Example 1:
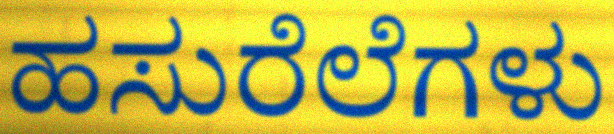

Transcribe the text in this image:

ಹಸುರೆಲೆಗಳು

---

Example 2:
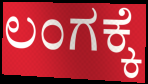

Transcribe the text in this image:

ಲಂಗಕ್ಕೆ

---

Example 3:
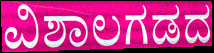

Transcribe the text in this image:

ವಿಶಾಲಗಡದ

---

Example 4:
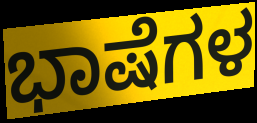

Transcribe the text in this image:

ಭಾಷೆಗಳ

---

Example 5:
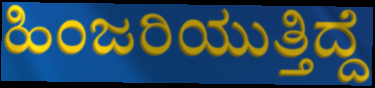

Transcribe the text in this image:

ಹಿಂಜರಿಯುತ್ತಿದ್ದೆ